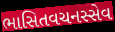
ભાસિતવચનસ્સેવ